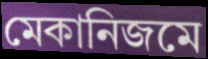
মেকানিজমে